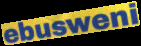
ebusweni